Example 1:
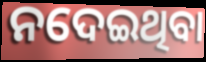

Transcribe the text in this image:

ନଦେଇଥିବା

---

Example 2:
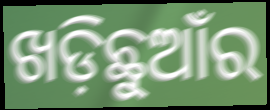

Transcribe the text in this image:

ଖଡ଼ିଛୁଆଁର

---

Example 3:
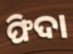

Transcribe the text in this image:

ଫିଦା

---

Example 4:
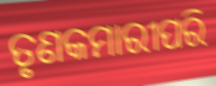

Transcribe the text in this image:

ତୃଣକମାରୀପରି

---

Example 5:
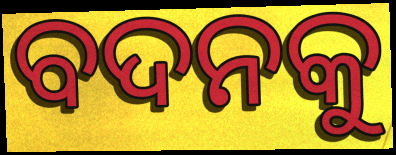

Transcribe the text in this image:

ବଦନକୁ